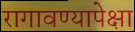
रागावण्यापेक्षा